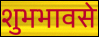
शुभभावसे